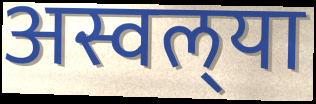
अस्वल्या